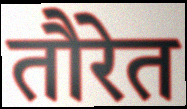
तौरेत